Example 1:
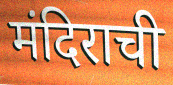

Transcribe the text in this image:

मंदिराची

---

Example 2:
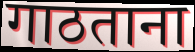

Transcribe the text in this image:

गाठताना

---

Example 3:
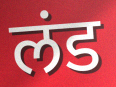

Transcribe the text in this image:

लंड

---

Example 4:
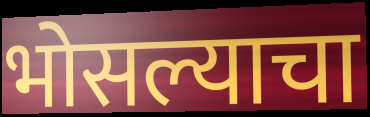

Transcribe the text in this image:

भोसल्याचा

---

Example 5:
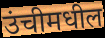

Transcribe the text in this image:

उंचीमधील